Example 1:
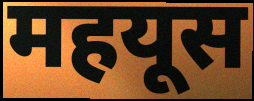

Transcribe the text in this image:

महयूस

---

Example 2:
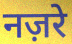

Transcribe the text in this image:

नज़रे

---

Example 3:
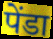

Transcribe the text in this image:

पेंडा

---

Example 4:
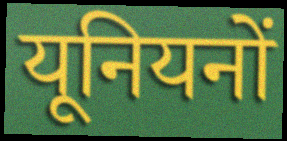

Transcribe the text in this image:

यूनियनों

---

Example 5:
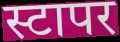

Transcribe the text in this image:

स्टापर